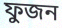
ফুজন